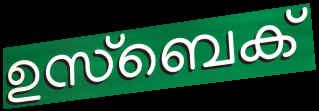
ഉസ്ബെക്